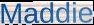
Maddie